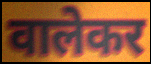
वालेकर